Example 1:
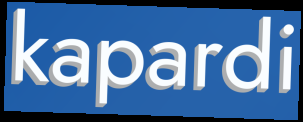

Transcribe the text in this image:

kapardi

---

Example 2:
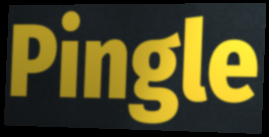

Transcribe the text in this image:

Pingle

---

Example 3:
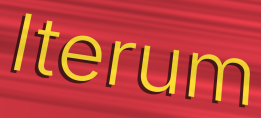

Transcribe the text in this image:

Iterum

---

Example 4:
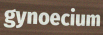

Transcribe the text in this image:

gynoecium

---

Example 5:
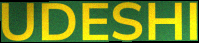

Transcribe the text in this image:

UDESHI